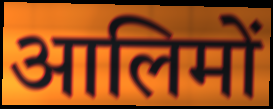
आलिमों